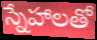
స్నేహాలతో